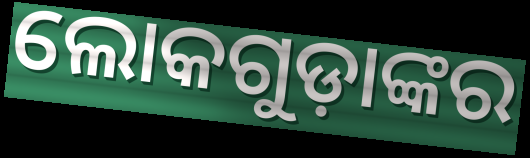
ଲୋକଗୁଡ଼ାଙ୍କର